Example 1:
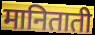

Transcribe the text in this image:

मानिताती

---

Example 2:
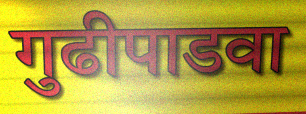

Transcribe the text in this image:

गुढीपाडवा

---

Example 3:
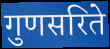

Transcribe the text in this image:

गुणसरिते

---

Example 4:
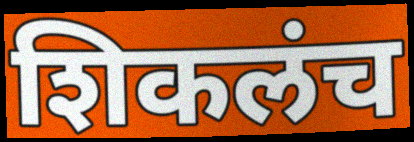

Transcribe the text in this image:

शिकलंच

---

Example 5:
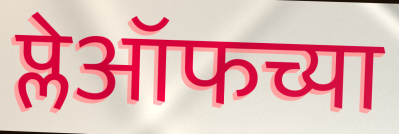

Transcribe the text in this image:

प्लेऑफच्या